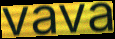
vava